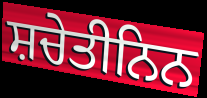
ਸ਼ਚੇਤੀਨਿਨ